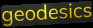
geodesics